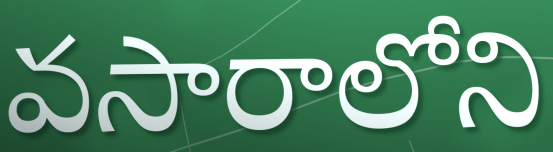
వసారాలోని